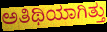
ಅತಿಥಿಯಾಗಿತ್ತು